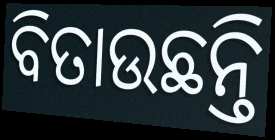
ବିତାଉଛନ୍ତି